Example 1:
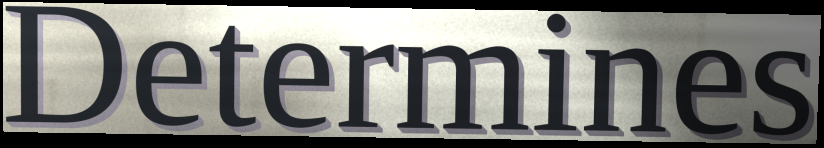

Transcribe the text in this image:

Determines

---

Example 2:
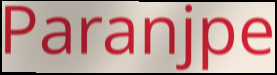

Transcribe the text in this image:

Paranjpe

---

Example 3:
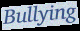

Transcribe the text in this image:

Bullying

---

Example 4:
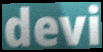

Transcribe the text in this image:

devi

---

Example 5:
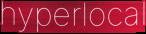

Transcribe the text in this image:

hyperlocal